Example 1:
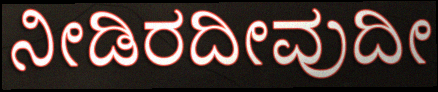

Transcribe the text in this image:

ನೀಡಿರದೀವುದೀ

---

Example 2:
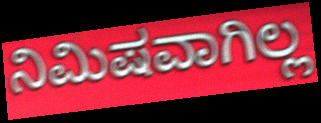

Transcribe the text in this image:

ನಿಮಿಷವಾಗಿಲ್ಲ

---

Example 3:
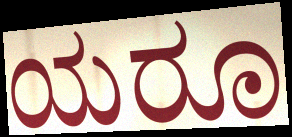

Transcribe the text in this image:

ಯರೂ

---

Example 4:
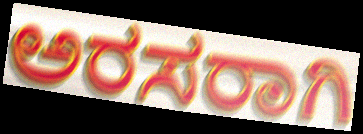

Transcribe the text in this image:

ಅರಸರಾಗಿ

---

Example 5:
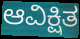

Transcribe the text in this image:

ಆವಿಕ್ಷಿತ